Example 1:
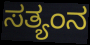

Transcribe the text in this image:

ಸತ್ಯಂನ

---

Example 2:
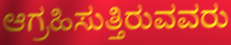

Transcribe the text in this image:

ಆಗ್ರಹಿಸುತ್ತಿರುವವರು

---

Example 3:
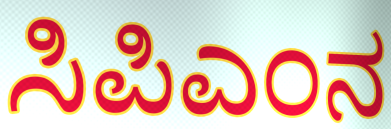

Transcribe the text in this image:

ಸಿಪಿಎಂನ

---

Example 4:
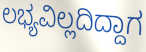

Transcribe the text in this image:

ಲಭ್ಯವಿಲ್ಲದಿದ್ದಾಗ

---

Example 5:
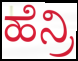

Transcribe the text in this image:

ಹೆನ್ರಿ